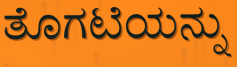
ತೊಗಟೆಯನ್ನು